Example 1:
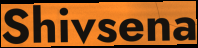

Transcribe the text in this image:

Shivsena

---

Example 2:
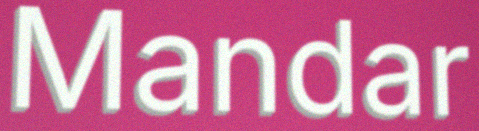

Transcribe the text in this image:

Mandar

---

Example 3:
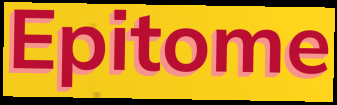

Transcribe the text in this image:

Epitome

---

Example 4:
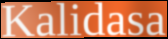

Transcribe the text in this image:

Kalidasa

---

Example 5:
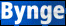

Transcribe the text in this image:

Bynge